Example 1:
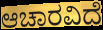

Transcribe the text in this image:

ಆಚಾರವಿದೆ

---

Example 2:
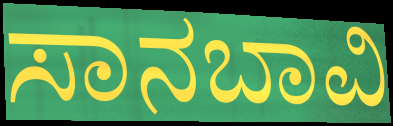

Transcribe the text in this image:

ಸಾನಬಾವಿ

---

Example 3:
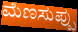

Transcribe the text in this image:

ಮೆಣಸುಪ್ಪು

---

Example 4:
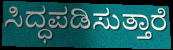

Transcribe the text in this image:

ಸಿದ್ಧಪಡಿಸುತ್ತಾರೆ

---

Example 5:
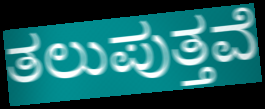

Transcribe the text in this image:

ತಲುಪುತ್ತವೆ